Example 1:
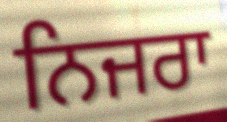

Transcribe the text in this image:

ਨਿਜਰਾ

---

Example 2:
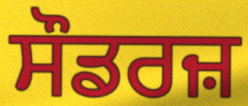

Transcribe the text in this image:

ਸੌਡਰਜ਼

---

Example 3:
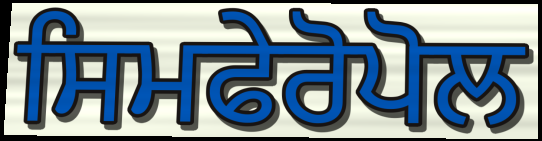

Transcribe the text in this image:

ਸਿਮਫੇਰੋਪੋਲ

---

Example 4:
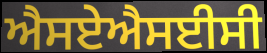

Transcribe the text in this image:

ਐਸਏਐਸਈਸੀ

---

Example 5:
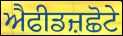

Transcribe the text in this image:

ਐਫੀਡਜ਼ਛੋਟੇ